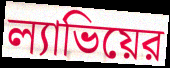
ল্যাভিয়ের